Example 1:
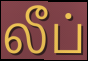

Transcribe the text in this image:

லீப்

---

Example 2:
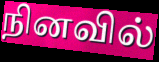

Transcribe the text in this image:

நினவில்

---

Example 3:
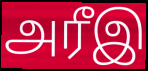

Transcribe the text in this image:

அரீஇ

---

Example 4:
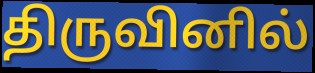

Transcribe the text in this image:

திருவினில்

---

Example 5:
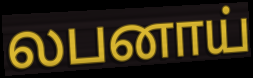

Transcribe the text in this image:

லபனாய்